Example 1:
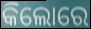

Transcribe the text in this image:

କିଲୋରେ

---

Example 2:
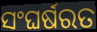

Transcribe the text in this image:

ସଂଘର୍ଷରତ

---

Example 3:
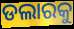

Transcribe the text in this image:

ଡଲାରକୁ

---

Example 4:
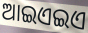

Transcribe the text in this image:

ଆଇଏଇଏ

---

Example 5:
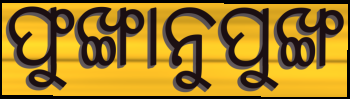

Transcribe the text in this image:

ଫୁଙ୍ଖାନୁପୁଙ୍ଖ